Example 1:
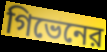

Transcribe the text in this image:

গিভেনের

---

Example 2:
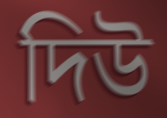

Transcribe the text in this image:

দিউ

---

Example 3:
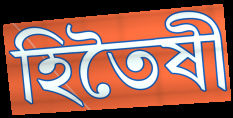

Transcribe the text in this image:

হিতৈষী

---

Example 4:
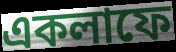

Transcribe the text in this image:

একলাফে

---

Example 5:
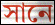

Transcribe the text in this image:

সানে